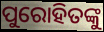
ପୁରୋହିତଙ୍କୁ